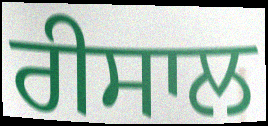
ਰੀਸਾਲ